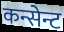
कन्सेन्ट